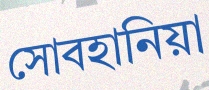
সোবহানিয়া